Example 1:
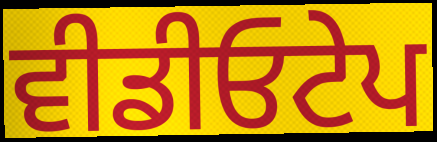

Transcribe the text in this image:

ਵੀਡੀਓਟੇਪ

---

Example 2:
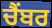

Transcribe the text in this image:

ਚੈਂਬਰ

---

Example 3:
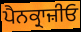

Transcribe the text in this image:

ਪੈਨਕ੍ਰਾਜ਼ੀਓ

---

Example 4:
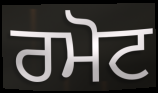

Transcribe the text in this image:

ਰਮੋਟ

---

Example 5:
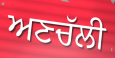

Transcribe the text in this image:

ਅਣਚੱਲੀ